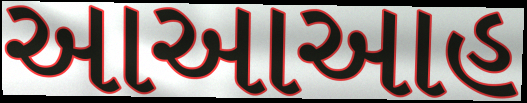
આઆઆહ